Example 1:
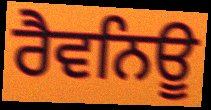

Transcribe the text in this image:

ਰੈਵਨਿਊ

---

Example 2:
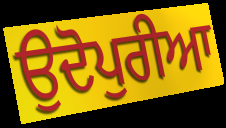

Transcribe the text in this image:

ਉਦੋਪੁਰੀਆ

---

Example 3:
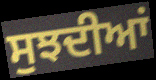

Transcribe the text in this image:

ਸੁਝਦੀਆਂ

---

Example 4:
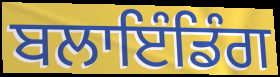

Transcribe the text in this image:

ਬਲਾਇੰਡਿੰਗ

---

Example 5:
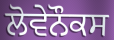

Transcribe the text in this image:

ਲੋਵੇਨੌਕਸ